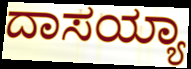
ದಾಸಯ್ಯಾ